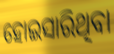
ହୋଇସାରିଥିବା